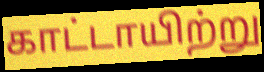
காட்டாயிற்று